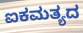
ಐಕಮತ್ಯದ